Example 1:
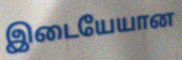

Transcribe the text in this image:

இடையேயான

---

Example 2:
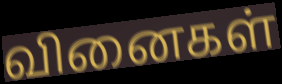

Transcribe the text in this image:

வினைகள்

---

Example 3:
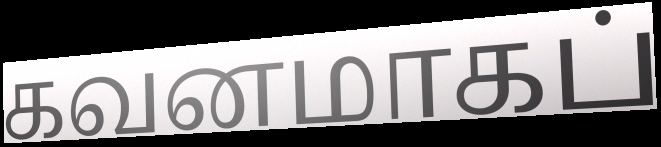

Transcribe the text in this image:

கவனமாகப்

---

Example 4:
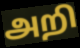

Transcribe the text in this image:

அறி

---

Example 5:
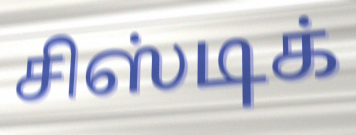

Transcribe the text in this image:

சிஸ்டிக்